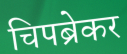
चिपब्रेकर